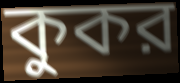
কুকর